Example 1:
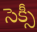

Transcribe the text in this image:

సెక్సీ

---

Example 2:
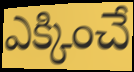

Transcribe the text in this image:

ఎక్కించే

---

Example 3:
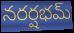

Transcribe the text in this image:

నరర్షభమ్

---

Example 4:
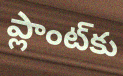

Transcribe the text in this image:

ప్లాంట్‌కు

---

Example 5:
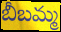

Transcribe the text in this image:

బీబమ్మ